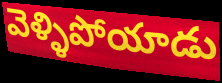
వెళ్ళిపోయాడు